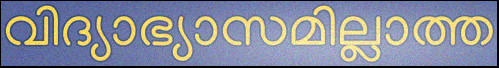
വിദ്യാഭ്യാസമില്ലാത്ത